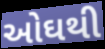
ઓઘથી